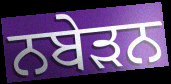
ਨਬੇੜਨ